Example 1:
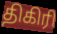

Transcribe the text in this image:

திகிரி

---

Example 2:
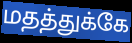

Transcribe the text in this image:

மதத்துக்கே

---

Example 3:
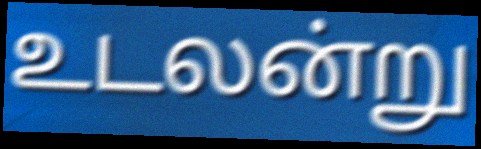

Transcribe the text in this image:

உடலன்று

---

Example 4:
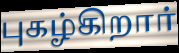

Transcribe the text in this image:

புகழ்கிறார்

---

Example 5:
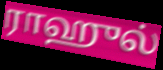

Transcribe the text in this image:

ராஹுல்